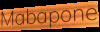
Mabapone